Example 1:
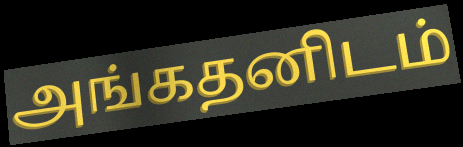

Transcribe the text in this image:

அங்கதனிடம்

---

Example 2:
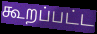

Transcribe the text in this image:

கூறப்பட்ட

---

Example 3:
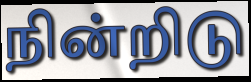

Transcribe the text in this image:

நின்றிடு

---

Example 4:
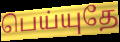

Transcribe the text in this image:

பெய்யுதே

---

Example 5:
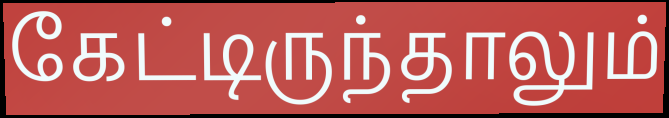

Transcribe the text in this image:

கேட்டிருந்தாலும்